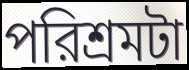
পরিশ্রমটা